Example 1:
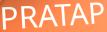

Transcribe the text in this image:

PRATAP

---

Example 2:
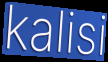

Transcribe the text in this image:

kalisi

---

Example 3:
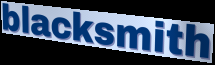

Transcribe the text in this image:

blacksmith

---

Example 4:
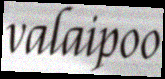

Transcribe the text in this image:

valaipoo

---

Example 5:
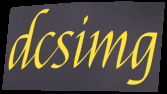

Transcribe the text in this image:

dcsimg